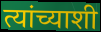
त्यांच्याशी